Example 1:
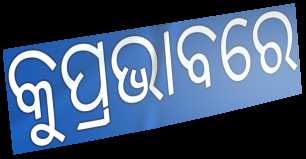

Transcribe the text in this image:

କୁପ୍ରଭାବରେ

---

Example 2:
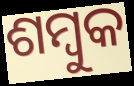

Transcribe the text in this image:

ଶମ୍ବୁକ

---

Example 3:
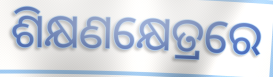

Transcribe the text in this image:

ଶିକ୍ଷଣକ୍ଷେତ୍ରରେ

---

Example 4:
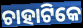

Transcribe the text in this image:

ଚାହାଟିକେ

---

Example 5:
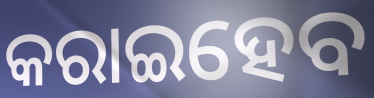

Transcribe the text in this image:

କରାଇହେବ